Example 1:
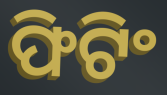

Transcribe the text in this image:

ଫିଟିଂ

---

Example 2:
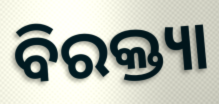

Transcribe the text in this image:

ବିରକ୍ତ୍ୟା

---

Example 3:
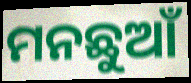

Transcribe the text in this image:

ମନଛୁଆଁ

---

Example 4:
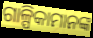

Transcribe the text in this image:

ଗାଳ୍ପିକାମାନଙ୍କ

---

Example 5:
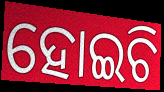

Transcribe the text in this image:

ହୋଇଚି